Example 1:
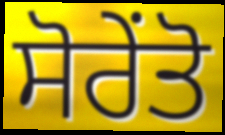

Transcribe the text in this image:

ਸੋਰੇਂਤੋ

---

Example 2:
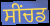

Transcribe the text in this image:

ਸੀਂਚਡ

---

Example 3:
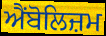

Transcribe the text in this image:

ਐਂਬੋਲਿਜ਼ਮ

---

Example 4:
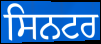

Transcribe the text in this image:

ਸਿਨਟਰ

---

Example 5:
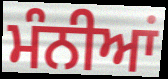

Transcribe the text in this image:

ਮੰਨੀਆਂ